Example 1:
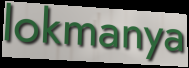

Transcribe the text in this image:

lokmanya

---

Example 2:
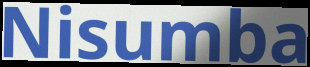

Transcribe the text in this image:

Nisumba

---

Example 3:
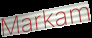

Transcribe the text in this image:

Markam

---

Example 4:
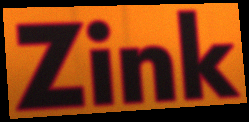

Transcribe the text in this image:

Zink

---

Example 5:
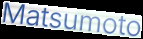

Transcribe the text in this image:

Matsumoto